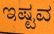
ಇಷ್ಟವ